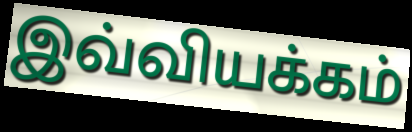
இவ்வியக்கம்